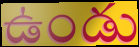
ఉండు